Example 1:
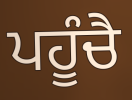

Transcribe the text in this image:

ਪਹੂੰਚੈ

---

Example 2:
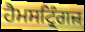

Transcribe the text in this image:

ਹੈਮਸਟ੍ਰਿੰਗਜ਼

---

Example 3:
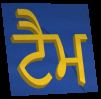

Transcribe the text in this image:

ਟੈਮ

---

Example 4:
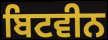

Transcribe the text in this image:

ਬਿਟਵੀਨ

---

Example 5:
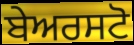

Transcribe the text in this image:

ਬੇਅਰਸਟੋ